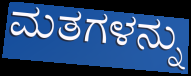
ಮತಗಳನ್ನು